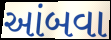
આંબવા